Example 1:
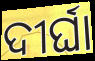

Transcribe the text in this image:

ଦୀର୍ଘା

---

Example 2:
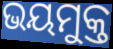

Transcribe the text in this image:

ଭୟମୁକ୍ତ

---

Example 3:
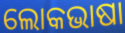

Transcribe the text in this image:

ଲୋକଭାଷା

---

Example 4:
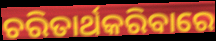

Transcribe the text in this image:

ଚରିତାର୍ଥକରିବାରେ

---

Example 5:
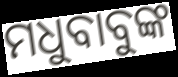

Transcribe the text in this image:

ମଧୁବାବୁଙ୍କ